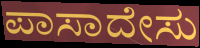
ಪಾಸಾದೇಸು